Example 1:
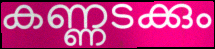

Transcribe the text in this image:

കണ്ണടക്കും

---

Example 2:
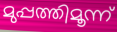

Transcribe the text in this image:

മുപ്പത്തിമൂന്ന്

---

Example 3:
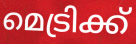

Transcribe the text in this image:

മെട്രിക്ക്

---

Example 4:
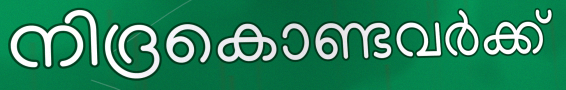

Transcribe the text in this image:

നിദ്രകൊണ്ടവർക്ക്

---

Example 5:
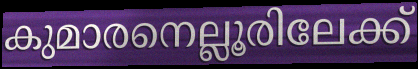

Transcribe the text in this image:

കുമാരനെല്ലൂരിലേക്ക്